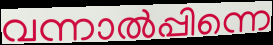
വന്നാൽപ്പിന്നെ